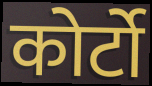
कोर्टो